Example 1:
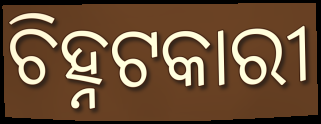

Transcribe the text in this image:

ଚିହ୍ନଟକାରୀ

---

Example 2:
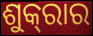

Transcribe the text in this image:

ଶୁକ୍‌ରାର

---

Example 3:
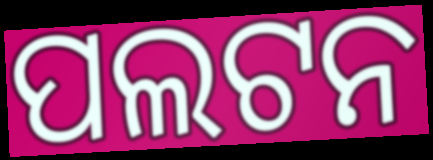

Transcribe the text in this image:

ପଲଟନ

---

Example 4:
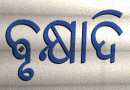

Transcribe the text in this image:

ଵୃକ୍ଷାଦି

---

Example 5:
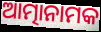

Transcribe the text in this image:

ଆତ୍ମାନାମକ